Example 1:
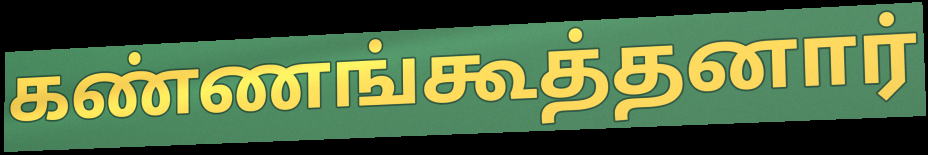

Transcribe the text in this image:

கண்ணங்கூத்தனார்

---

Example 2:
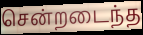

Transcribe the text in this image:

சென்றடைந்த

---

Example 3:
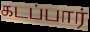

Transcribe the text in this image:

கடப்பார்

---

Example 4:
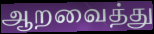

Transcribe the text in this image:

ஆறவைத்து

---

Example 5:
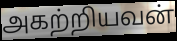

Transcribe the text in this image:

அகற்றியவன்